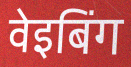
वेइबिंग